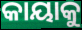
କାୟାକୁ